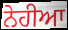
ਨੇਹੀਆ